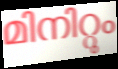
മിനിറ്റും